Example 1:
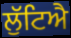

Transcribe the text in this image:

ਲੁੱਟਿਐ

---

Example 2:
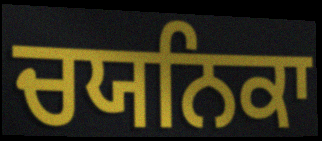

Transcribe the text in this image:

ਚਯਨਿਕਾ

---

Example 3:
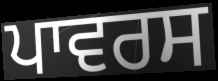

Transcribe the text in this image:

ਪਾਵਰਸ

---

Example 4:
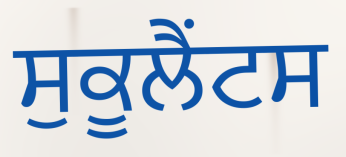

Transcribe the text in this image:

ਸੁਕੂਲੈਂਟਸ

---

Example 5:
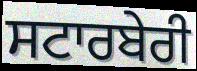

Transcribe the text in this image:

ਸਟਾਰਬੇਰੀ